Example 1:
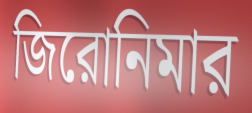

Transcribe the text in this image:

জিরোনিমার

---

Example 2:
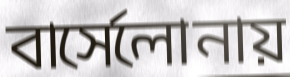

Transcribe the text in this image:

বার্সেলোনায়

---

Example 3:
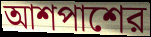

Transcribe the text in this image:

আশপাশের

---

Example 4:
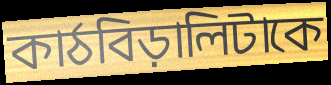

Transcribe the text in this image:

কাঠবিড়ালিটাকে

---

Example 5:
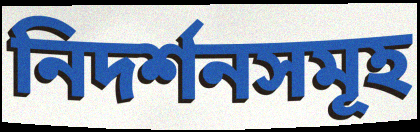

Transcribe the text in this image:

নিদর্শনসমূহ